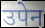
उपेन